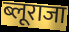
ब्लूराजा